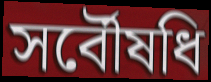
সর্বৌষধি